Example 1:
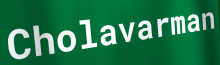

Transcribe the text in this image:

Cholavarman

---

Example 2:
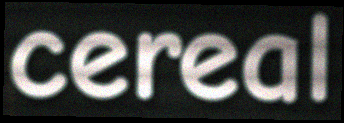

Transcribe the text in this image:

cereal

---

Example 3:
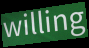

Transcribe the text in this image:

willing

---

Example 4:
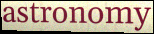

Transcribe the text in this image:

astronomy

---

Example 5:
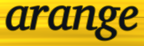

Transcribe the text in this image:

arange